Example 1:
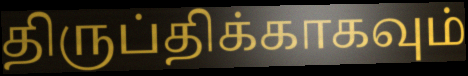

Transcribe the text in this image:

திருப்திக்காகவும்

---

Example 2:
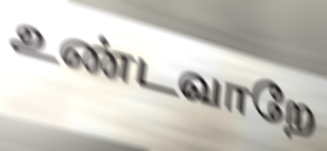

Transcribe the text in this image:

உண்டவாறே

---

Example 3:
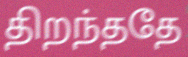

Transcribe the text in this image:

திறந்ததே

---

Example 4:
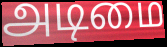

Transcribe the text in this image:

அடிமை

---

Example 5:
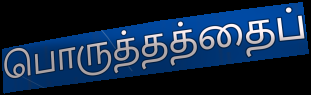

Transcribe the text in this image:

பொருத்தத்தைப்